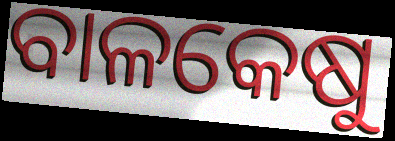
ବାଳକେଷୁ